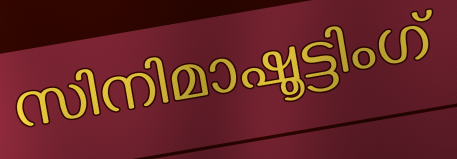
സിനിമാഷൂട്ടിംഗ്